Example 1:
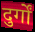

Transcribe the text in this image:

दुर्गों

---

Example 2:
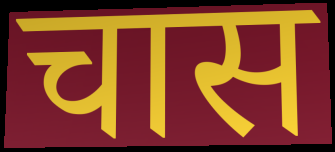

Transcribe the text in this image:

चास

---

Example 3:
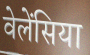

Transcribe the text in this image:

वेलेंसिया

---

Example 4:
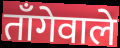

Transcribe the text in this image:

ताँगेवाले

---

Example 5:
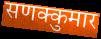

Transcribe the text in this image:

सणक्कुमार